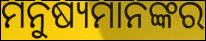
ମନୁଷ୍ୟମାନଙ୍କର